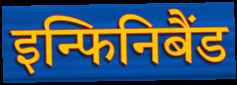
इन्फिनिबैंड